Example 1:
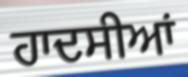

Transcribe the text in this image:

ਹਾਦਸੀਆਂ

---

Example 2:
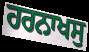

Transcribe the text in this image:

ਹਰਨਾਖਸੁ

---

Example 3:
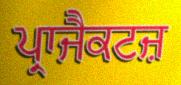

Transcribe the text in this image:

ਪ੍ਰਾਜੈਕਟਜ਼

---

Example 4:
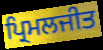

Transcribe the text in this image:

ਪ੍ਰਿਮਲਜੀਤ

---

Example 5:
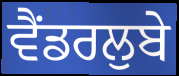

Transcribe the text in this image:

ਵੈਂਡਰਲੁਬੇ